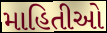
માહિતીઓ